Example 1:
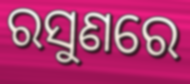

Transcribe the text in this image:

ରସୁଣରେ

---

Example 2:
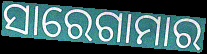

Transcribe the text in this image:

ସାରେଗାମାର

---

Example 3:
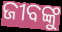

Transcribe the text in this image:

ଜୀବଙ୍କୁ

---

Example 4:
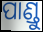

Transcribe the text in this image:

ପାଣ୍ଡୁ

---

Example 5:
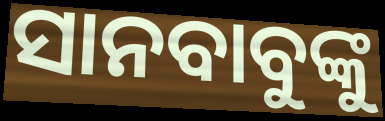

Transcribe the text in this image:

ସାନବାବୁଙ୍କୁ